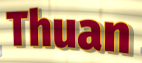
Thuan